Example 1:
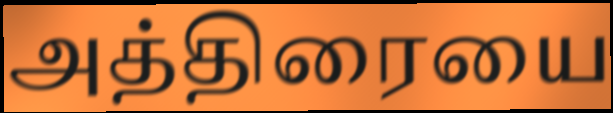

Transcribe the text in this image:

அத்திரையை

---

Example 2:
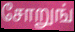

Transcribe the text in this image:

சோறுங்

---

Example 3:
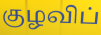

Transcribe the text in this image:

குழவிப்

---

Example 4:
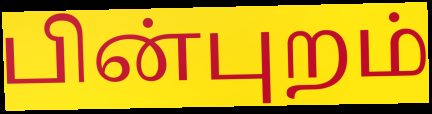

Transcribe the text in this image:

பின்புறம்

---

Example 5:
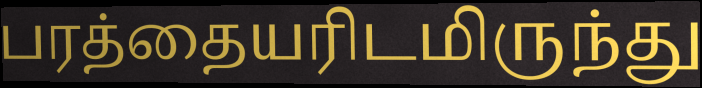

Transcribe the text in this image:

பரத்தையரிடமிருந்து